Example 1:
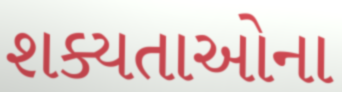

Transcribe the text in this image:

શક્યતાઓના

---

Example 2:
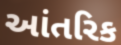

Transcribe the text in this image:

આંતરિક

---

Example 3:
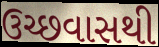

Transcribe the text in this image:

ઉચ્છવાસથી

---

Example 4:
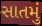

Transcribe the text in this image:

સાતમું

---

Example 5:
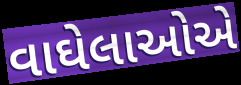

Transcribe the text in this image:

વાઘેલાઓએ